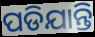
ପଡିଯାନ୍ତି